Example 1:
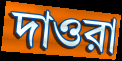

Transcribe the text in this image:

দাওরা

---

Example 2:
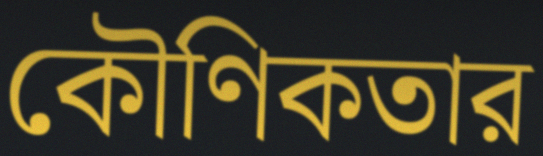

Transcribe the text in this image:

কৌণিকতার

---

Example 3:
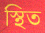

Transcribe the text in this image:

স্থিত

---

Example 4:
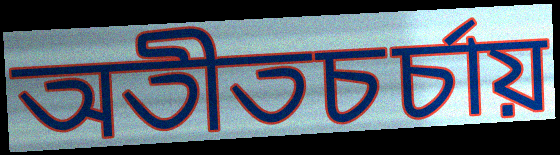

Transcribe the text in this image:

অতীতচর্চায়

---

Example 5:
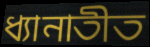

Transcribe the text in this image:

ধ্যানাতীত